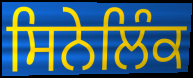
ਸਿਨੇਲਿੰਕ